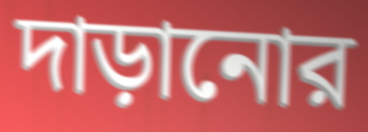
দাড়ানোর